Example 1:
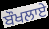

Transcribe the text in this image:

ਬੌਖਲਾਏ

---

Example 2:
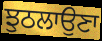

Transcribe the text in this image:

ਝੁਠਲਾਉਣਾ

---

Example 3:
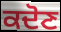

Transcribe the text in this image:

ਕਦੋਣ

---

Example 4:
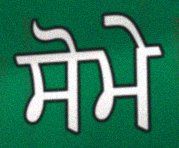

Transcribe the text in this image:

ਸੋਮੇ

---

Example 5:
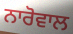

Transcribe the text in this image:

ਨਾਰੋਵਾਲ